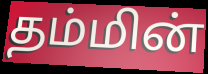
தம்மின்